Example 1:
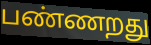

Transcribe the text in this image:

பண்ணறது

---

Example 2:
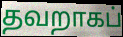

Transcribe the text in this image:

தவறாகப்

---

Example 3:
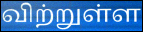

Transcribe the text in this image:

விற்றுள்ள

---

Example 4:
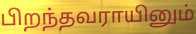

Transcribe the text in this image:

பிறந்தவராயினும்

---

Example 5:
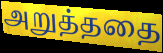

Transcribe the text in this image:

அறுத்ததை